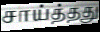
சாய்த்தது